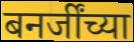
बनर्जींच्या